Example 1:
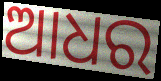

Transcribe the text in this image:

ଆଧର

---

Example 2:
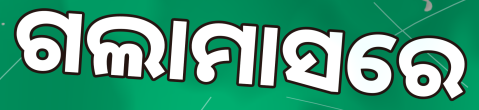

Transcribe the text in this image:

ଗଲାମାସରେ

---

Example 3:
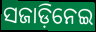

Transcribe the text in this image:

ସଜାଡ଼ିନେଇ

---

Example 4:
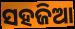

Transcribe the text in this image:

ସହଜିଆ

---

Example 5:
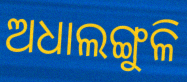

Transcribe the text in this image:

ଅଧାଲଙ୍ଗୁଳି